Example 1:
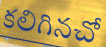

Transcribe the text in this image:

కలిగినచో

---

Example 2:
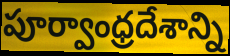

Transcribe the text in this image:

పూర్వాంధ్రదేశాన్ని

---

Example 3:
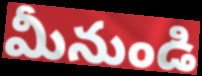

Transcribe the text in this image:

మీనుండి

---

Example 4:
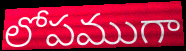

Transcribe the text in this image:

లోపముగా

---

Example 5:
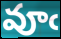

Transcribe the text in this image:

వూఁ